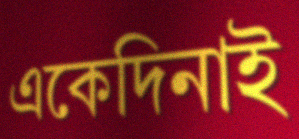
একেদিনাই